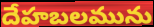
దేహబలమును